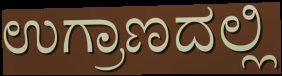
ಉಗ್ರಾಣದಲ್ಲಿ